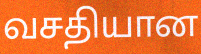
வசதியான